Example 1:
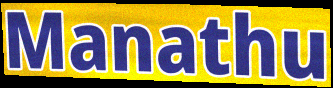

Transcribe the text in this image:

Manathu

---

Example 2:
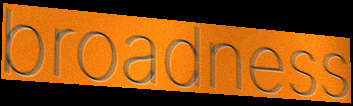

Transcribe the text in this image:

broadness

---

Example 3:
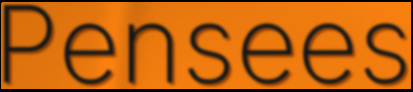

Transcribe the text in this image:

Pensees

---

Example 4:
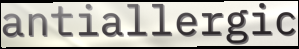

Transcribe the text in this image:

antiallergic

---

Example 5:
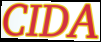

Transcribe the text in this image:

CIDA